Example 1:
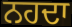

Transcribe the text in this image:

ਨਹਦਾ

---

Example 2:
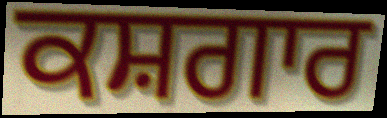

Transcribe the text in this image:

ਕਸ਼ਗਾਰ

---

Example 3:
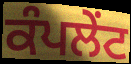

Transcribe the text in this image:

ਕੰਪਲੇਂਟ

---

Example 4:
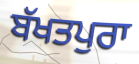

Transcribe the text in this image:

ਬੱਖਤਪੁਰਾ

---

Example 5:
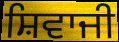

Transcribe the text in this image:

ਸ਼ਿਵਾਜੀ